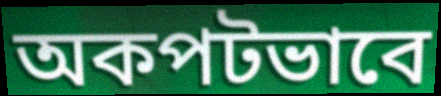
অকপটভাবে